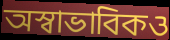
অস্বাভাবিকও